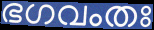
ഭഗവംതഃ